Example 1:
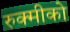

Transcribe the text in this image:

रुक्मीको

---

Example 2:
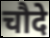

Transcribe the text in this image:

चौदे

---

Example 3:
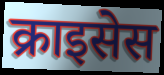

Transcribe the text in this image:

क्राइसेस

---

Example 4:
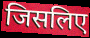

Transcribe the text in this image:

जिसलिए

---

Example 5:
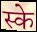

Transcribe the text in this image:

स्के